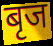
बृज